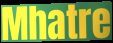
Mhatre